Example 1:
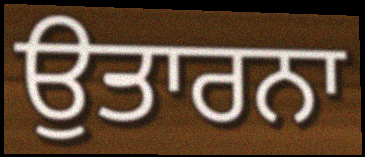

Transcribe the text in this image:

ਉਤਾਰਨਾ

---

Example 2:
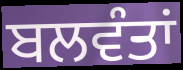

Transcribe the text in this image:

ਬਲਵੰਤਾਂ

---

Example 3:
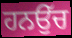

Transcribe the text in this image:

ਹਨਉੱਚ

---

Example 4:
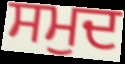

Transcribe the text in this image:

ਸਮੁਦ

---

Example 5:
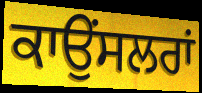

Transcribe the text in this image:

ਕਾਉਂਸਲਰਾਂ